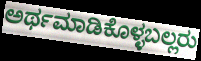
ಅರ್ಥಮಾಡಿಕೊಳ್ಳಬಲ್ಲರು